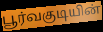
பூர்வகுடியின்